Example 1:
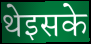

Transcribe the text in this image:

थेइसके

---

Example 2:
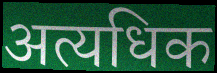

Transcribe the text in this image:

अत्यधिक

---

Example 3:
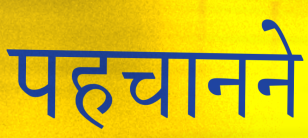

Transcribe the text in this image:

पहचानने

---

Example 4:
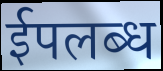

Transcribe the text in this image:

ईपलब्ध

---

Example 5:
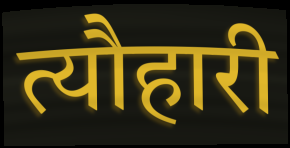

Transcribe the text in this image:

त्यौहारी